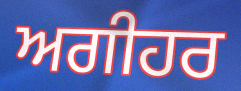
ਅਗੀਹਰ